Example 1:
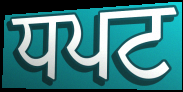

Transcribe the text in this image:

ਧਪਟ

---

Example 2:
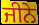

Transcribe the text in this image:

ਜੀਨੇ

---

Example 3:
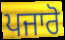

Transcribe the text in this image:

ਪਜਾਰੋ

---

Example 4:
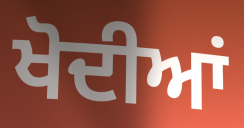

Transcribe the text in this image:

ਖੋਦੀਆਂ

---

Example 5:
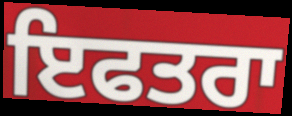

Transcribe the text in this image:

ਇਫਤਰਾ